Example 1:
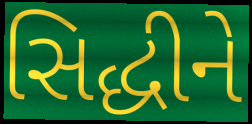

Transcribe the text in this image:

સિદ્ધીને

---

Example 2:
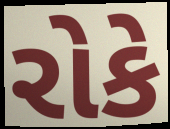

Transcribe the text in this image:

રોકે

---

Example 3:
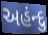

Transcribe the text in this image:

અહંન્દુ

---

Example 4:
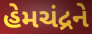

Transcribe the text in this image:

હેમચંદ્રને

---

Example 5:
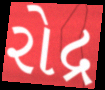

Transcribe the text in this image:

રોદ્ર